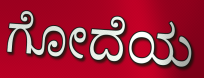
ಗೋದೆಯ